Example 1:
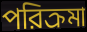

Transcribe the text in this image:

পরিক্রমা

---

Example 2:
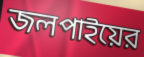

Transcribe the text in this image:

জলপাইয়ের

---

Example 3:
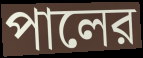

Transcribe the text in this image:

পালের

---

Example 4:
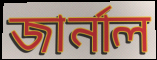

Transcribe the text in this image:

জার্নাল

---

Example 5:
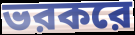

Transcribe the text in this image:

ভরকরে